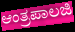
ಆಂತ್ರಪಾಲಜಿ